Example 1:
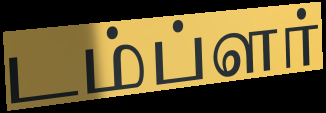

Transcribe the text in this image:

டம்ப்ளர்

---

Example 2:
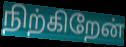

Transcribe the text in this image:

நிற்கிறேன்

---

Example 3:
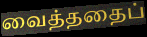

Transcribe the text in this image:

வைத்ததைப்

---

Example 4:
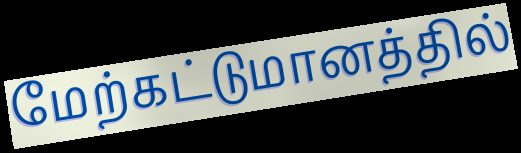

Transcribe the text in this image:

மேற்கட்டுமானத்தில்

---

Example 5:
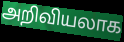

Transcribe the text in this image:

அறிவியலாக